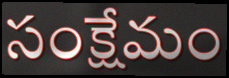
సంక్షేమం